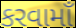
કરવામાઁ